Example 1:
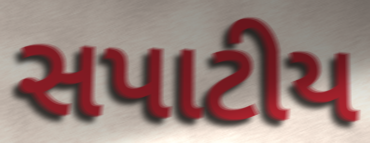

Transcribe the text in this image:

સપાટીય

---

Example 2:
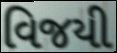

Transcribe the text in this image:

વિજયી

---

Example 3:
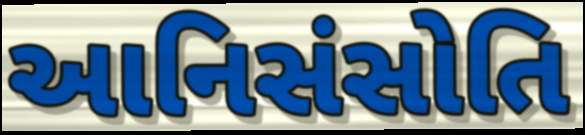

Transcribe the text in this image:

આનિસંસોતિ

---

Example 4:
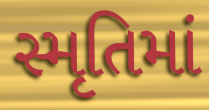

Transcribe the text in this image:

સ્મૃતિમાં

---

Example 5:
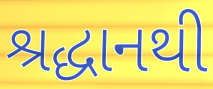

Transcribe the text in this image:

શ્રદ્ધાનથી